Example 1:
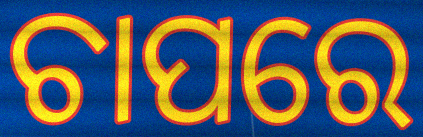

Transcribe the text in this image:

ଚାପରେ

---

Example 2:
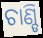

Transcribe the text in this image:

ଚାଣ୍ଡି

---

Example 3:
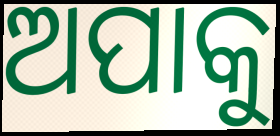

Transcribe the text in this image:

ଅପାକୁ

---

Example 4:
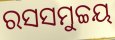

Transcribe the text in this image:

ରସସମୁଚ୍ଚୟ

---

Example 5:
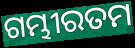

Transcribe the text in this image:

ଗମ୍ଭୀରତମ